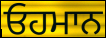
ਓਹਮਾਨ